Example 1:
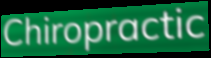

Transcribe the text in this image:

Chiropractic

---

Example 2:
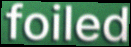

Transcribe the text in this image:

foiled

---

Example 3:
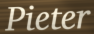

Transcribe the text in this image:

Pieter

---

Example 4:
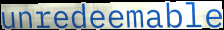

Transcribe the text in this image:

unredeemable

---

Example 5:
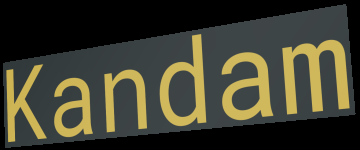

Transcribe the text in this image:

Kandam